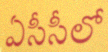
ఏసీసీలో